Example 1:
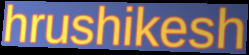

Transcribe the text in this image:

hrushikesh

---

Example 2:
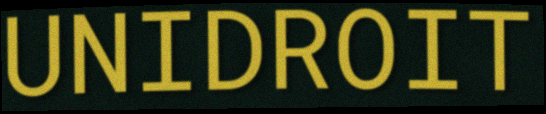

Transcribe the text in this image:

UNIDROIT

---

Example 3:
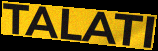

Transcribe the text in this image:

TALATI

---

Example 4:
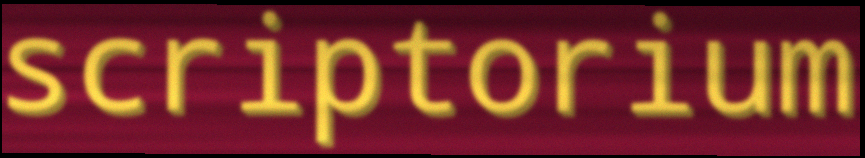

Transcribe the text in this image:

scriptorium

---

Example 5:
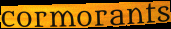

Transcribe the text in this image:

cormorants